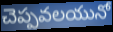
చెప్పవలయునో